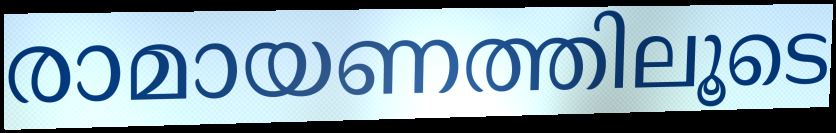
രാമായണത്തിലൂടെ